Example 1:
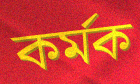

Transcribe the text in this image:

কৰ্মক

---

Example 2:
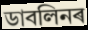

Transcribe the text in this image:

ডাবলিনৰ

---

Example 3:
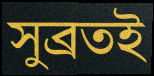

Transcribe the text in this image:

সুব্ৰতই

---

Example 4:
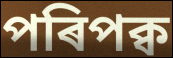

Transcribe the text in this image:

পৰিপক্ব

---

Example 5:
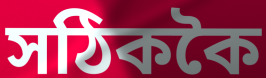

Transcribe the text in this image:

সঠিককৈ